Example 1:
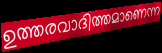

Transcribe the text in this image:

ഉത്തരവാദിത്തമാണെന്ന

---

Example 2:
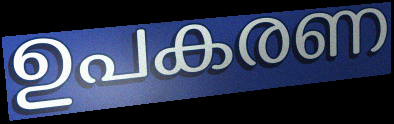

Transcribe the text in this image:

ഉപകരണ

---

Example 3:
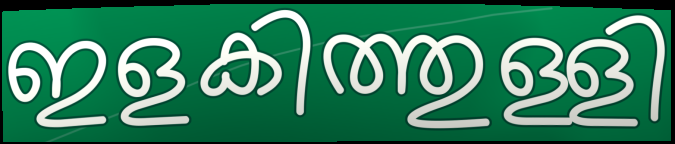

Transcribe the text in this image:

ഇളകിത്തുള്ളി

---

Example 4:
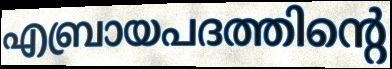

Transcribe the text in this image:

എബ്രായപദത്തിന്റെ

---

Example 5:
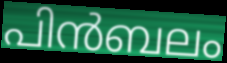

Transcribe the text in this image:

പിൻബലം